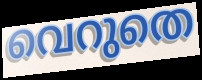
വെറുതെ